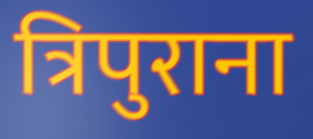
त्रिपुराना